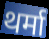
थर्मा